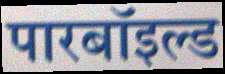
पारबॉइल्ड